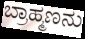
ಬ್ರಾಹ್ಮಣನು